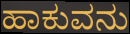
ಹಾಕುವನು